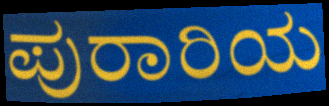
ಪುರಾರಿಯ